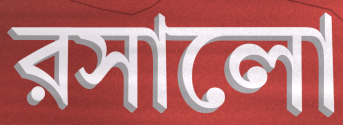
রসালো